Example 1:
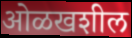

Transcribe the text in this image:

ओळखशील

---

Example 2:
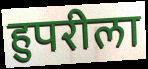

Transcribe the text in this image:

हुपरीला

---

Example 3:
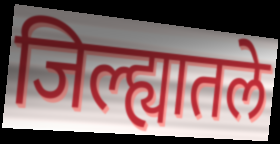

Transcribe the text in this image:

जिल्ह्यातले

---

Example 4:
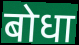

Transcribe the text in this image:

बोधा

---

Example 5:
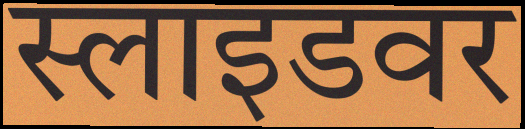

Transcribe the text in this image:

स्‍लाइडवर